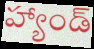
హ్యాండ్